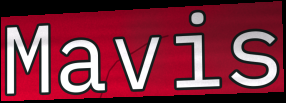
Mavis